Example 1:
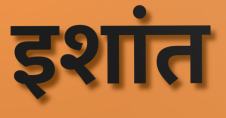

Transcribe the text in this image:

इशांत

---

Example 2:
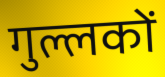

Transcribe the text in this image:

गुल्लकों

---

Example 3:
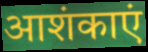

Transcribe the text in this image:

आशंकाएं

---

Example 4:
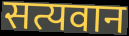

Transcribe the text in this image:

सत्यवान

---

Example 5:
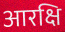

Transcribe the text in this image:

आरक्षि